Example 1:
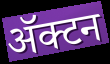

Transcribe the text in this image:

ॲक्टन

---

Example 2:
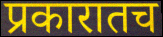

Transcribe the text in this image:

प्रकारातच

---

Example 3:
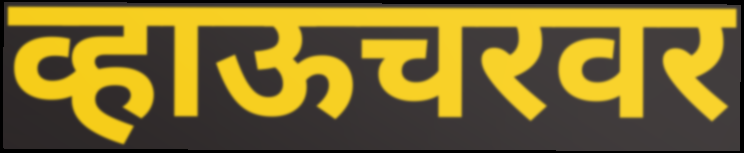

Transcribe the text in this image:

व्हाऊचरवर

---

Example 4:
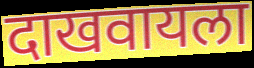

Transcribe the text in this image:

दाखवायला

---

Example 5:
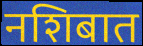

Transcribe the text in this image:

नशिबात